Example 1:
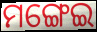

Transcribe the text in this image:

ମଙ୍ଗେଇ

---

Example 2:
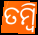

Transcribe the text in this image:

ତମ୍ବି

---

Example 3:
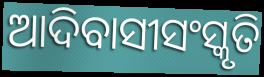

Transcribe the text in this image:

ଆଦିବାସୀସଂସ୍କୃତି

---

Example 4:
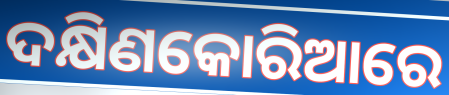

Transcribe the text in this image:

ଦକ୍ଷିଣକୋରିଆରେ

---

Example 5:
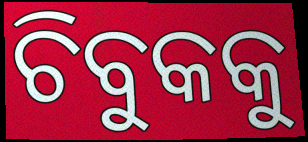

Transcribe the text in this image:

ଚିବୁକକୁ